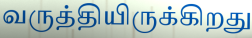
வருத்தியிருக்கிறது